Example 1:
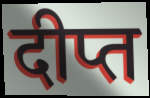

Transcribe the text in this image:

दीप्त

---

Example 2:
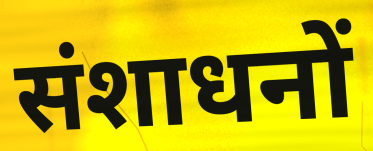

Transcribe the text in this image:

संशाधनों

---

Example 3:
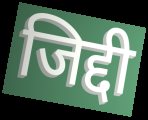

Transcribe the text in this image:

जिद्दी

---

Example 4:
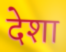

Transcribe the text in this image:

देशा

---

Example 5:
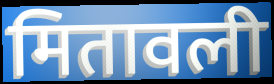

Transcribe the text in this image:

मितावली